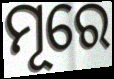
ମୂରେ